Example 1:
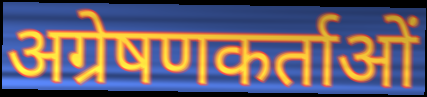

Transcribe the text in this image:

अग्रेषणकर्ताओं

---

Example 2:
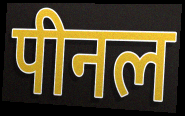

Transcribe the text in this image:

पीनल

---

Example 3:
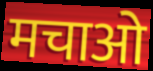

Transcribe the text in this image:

मचाओ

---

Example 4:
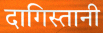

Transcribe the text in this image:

दागिस्तानी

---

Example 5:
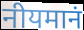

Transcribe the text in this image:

नीयमानं